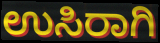
ಉಸಿರಾಗಿ